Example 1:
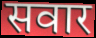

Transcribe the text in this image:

सवार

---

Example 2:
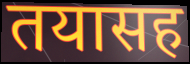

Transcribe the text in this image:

तयासह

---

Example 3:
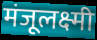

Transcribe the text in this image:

मंजूलक्ष्मी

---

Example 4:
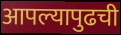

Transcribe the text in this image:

आपल्यापुढची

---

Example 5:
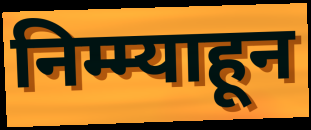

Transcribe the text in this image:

निम्म्याहून